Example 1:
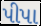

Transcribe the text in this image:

પીપા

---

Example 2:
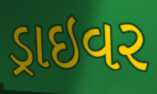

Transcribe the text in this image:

ડ્રાઇવર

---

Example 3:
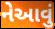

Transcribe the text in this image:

નેઆવું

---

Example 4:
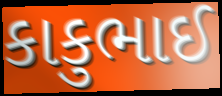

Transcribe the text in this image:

કાકુભાઈ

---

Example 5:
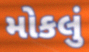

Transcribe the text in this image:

મોકલું